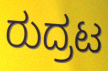
ರುದ್ರಟ